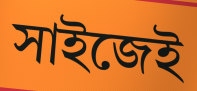
সাইজেই